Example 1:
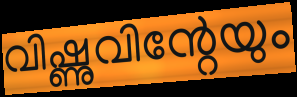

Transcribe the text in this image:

വിഷ്ണുവിന്റേയും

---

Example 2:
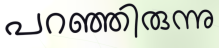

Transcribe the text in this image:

പറഞ്ഞിരുന്നു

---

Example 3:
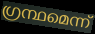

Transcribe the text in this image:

ഗ്രന്ഥമെന്ന്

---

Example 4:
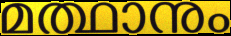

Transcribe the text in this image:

മത്ഥാനും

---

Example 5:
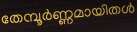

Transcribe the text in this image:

തേമ്പൂർണ്ണമായിതൾ